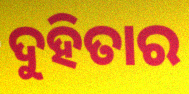
ଦୁହିତାର